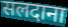
सलदाना